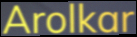
Arolkar